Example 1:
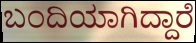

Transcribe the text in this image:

ಬಂದಿಯಾಗಿದ್ದಾರೆ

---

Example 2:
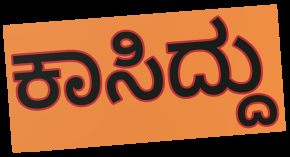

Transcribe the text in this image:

ಕಾಸಿದ್ದು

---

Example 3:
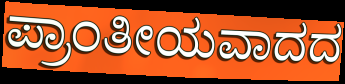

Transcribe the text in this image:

ಪ್ರಾಂತೀಯವಾದದ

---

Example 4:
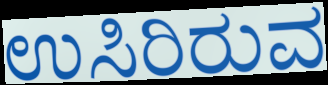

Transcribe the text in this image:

ಉಸಿರಿರುವ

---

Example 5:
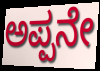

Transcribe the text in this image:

ಅಪ್ಪನೇ